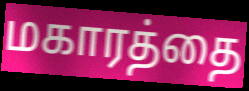
மகாரத்தை